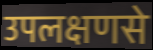
उपलक्षणसे